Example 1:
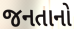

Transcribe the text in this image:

જનતાનો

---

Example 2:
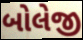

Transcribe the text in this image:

બોલેજી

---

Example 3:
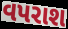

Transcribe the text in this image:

વપરાશ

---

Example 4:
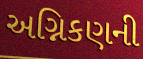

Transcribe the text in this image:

અગ્નિકણની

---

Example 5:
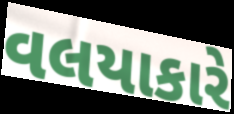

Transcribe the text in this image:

વલયાકારે